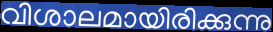
വിശാലമായിരിക്കുന്നു